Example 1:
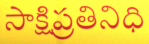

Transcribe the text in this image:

సాక్షిప్రతినిధి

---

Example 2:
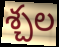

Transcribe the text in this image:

శ్చల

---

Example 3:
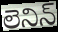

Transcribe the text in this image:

లెనిన్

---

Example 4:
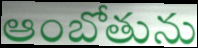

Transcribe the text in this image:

ఆంబోతును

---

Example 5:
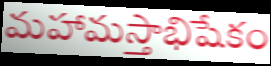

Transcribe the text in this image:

మహామస్తాభిషేకం